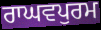
ਰਾਘਵਪੁਰਮ